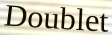
Doublet